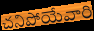
చనిపోయేవారి